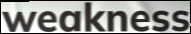
weakness